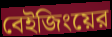
বেইজিংয়ের